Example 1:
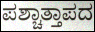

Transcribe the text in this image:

ಪಶ್ಚಾತ್ತಾಪದ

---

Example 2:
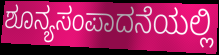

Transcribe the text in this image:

ಶೂನ್ಯಸಂಪಾದನೆಯಲ್ಲಿ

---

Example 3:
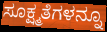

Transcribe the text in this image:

ಸೂಕ್ಷ್ಮತೆಗಳನ್ನೂ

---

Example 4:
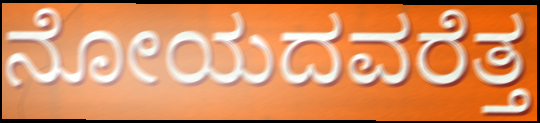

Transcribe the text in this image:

ನೋಯದವರೆತ್ತ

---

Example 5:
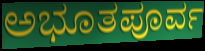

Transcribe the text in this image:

ಅಭೂತಪೂರ್ವ